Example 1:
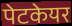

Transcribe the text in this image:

पेटकेयर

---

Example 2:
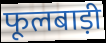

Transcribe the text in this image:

फूलबाड़ी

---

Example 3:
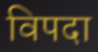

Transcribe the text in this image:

विपदा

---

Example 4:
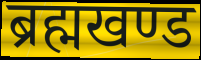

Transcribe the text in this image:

ब्रह्मखण्ड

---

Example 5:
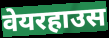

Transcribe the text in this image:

वेयरहाउस